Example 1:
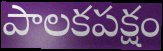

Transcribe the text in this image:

పాలకపక్షం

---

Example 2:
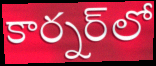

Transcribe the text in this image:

కార్నర్‌లో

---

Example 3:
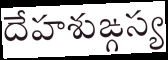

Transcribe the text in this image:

దేహశుఙ్గస్య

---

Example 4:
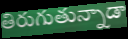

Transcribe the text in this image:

తిరుగుతున్నాడా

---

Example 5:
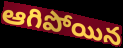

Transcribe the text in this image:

ఆగిపోయిన